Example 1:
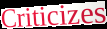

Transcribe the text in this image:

Criticizes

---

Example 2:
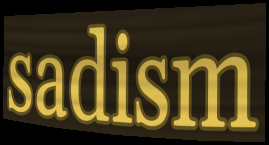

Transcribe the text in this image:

sadism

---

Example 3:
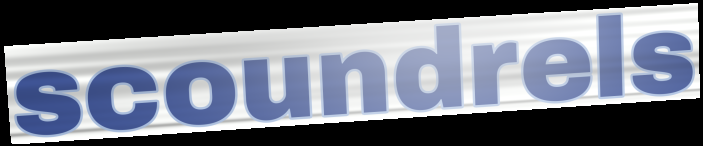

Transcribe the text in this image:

scoundrels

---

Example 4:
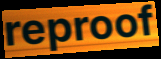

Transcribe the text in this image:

reproof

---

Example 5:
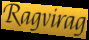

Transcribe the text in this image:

Ragvirag